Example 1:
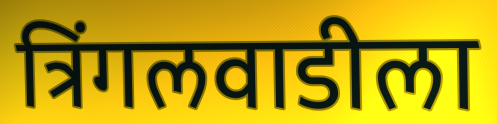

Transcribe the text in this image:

त्रिंगलवाडीला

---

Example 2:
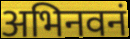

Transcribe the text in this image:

अभिनवनं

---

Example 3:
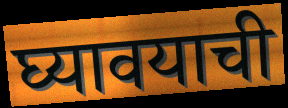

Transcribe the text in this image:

घ्यावयाची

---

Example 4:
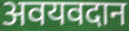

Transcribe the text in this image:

अवयवदान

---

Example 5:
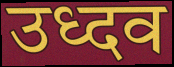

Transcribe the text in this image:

उध्दव